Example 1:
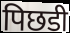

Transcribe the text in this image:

पिछडी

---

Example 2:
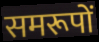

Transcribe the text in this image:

समरूपों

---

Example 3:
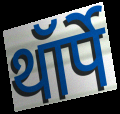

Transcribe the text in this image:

थॉर्पे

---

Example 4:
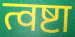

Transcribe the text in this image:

त्वष्टा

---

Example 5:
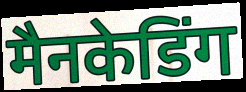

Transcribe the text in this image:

मैनकेडिंग